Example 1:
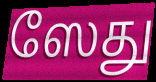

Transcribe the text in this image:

ஸேது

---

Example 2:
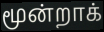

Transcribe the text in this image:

மூன்றாக்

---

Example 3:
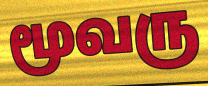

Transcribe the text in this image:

மூவரு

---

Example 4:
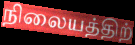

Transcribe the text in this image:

நிலையத்திற்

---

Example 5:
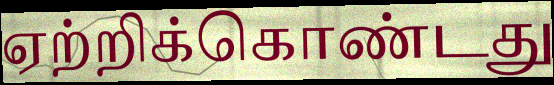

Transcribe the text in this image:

ஏற்றிக்கொண்டது